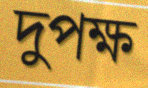
দুপক্ষ